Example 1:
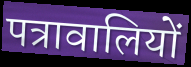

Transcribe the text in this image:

पत्रावालियों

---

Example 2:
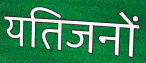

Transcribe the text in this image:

यतिजनों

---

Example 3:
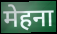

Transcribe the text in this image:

मेहना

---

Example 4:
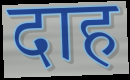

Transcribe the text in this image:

दाह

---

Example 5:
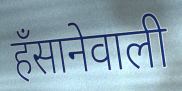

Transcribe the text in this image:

हँसानेवाली